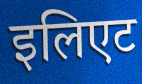
इलिएट